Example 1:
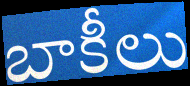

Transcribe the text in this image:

బాకీలు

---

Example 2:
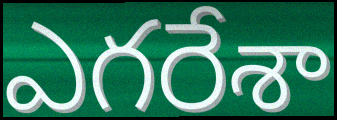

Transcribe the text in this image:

ఎగరేశా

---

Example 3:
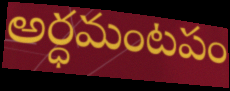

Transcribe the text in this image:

అర్ధమంటపం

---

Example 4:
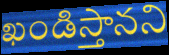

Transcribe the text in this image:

ఖండిస్తానని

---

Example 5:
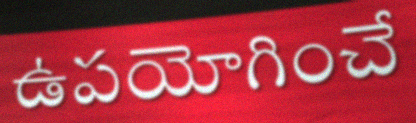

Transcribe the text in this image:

ఉపయోగించే